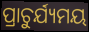
ପ୍ରାଚୁର୍ଯ୍ୟମୟ